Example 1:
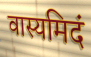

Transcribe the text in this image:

वास्यमिदं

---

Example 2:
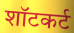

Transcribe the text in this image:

शॉटकर्ट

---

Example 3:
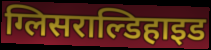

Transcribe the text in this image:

ग्लिसराल्डिहाइड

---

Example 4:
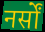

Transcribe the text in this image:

नर्सों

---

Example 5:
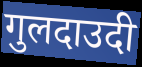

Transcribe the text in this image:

गुलदाउदी